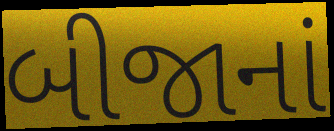
બીજાનાં